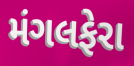
મંગલફેરા